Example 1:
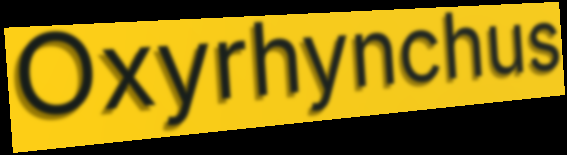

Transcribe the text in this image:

Oxyrhynchus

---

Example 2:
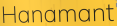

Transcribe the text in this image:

Hanamant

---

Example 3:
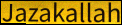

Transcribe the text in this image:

Jazakallah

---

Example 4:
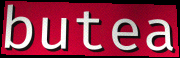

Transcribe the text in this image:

butea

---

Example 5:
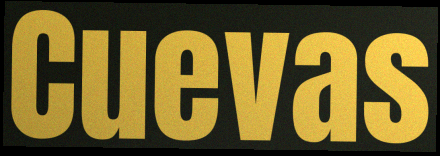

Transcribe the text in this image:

Cuevas